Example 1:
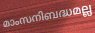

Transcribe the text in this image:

മാംസനിബദ്ധമല്ല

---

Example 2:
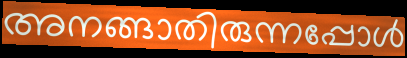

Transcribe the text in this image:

അനങ്ങാതിരുന്നപ്പോൾ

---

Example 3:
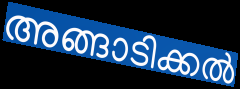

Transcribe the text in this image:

അങ്ങാടിക്കൽ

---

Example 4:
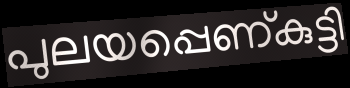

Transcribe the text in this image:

പുലയപ്പെണ്കുട്ടി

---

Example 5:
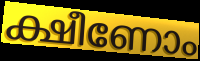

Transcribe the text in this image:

ക്ഷീണോം